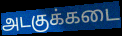
அடகுக்கடை